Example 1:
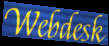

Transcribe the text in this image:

Webdesk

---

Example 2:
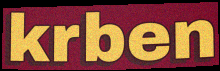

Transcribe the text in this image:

krben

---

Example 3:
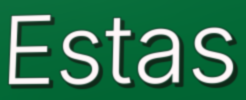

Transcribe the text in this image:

Estas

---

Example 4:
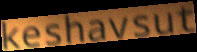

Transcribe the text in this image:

keshavsut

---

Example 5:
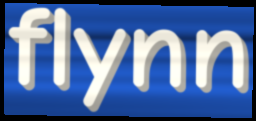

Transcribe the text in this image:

flynn